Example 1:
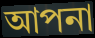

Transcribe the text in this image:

আপনা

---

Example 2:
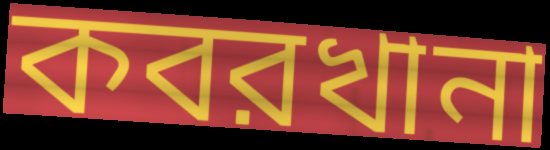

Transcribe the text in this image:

কবরখানা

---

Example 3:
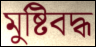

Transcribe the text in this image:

মুষ্টিবদ্ধ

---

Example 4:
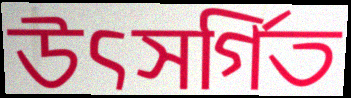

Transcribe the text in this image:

উৎসর্গিত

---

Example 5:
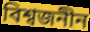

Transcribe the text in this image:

বিশ্বজনীন